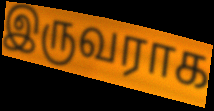
இருவராக